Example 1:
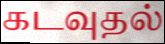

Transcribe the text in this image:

கடவுதல்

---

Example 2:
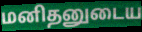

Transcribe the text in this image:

மனிதனுடைய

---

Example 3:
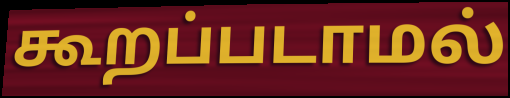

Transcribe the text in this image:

கூறப்படாமல்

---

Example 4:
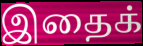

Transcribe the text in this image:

இதைக்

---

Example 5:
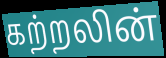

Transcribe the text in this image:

கற்றலின்